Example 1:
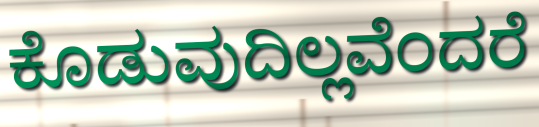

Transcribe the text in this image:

ಕೊಡುವುದಿಲ್ಲವೆಂದರೆ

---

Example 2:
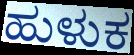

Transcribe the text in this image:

ಹುಳುಕ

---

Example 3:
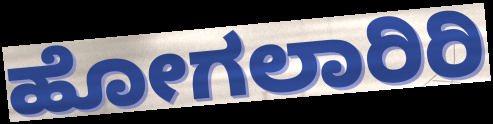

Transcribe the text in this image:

ಹೋಗಲಾರಿರಿ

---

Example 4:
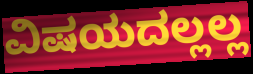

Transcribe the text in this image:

ವಿಷಯದಲ್ಲಲ್ಲ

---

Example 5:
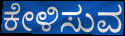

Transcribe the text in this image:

ಕೇಳಿಸುವ